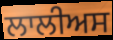
ਲਾਲੀਅਸ